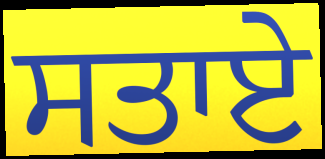
ਸਤਾਏ